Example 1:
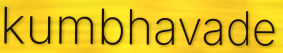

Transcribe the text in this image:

kumbhavade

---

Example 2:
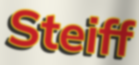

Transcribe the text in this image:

Steiff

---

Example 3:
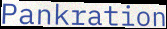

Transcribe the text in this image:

Pankration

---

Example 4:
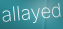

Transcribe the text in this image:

allayed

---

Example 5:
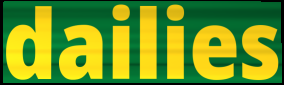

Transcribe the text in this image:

dailies